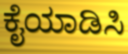
ಕೈಯಾಡಿಸಿ